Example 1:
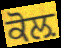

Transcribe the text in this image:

ਕੋਲ਼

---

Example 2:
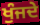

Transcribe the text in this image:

ਖੁੰਜਦੇ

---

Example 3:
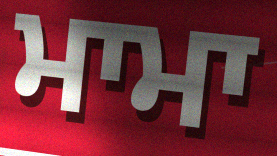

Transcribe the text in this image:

ਮਾਮਾ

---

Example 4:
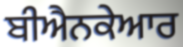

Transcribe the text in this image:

ਬੀਐਨਕੇਆਰ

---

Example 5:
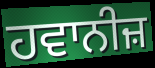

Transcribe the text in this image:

ਹਵਾਨੀਜ਼